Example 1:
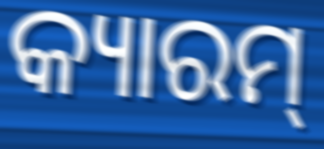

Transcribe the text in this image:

କ୍ୟାରମ୍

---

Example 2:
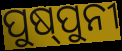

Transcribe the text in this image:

ପୁଷ୍‌ପୁନୀ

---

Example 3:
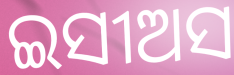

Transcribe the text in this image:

ଇସୀଅସ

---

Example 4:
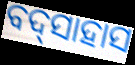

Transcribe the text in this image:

ବଦ୍‌ସାହାସ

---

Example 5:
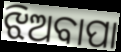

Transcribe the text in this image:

ଝିଅବାପା